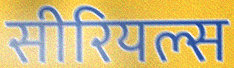
सीरियल्स